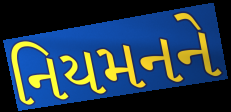
નિયમનને